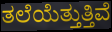
ತಲೆಯೆತ್ತುತ್ತಿವೆ